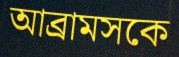
আব্রামসকে